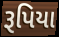
રૂપિયા